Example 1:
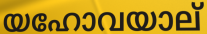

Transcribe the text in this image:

യഹോവയാല്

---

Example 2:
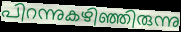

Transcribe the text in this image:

പിറന്നുകഴിഞ്ഞിരുന്നു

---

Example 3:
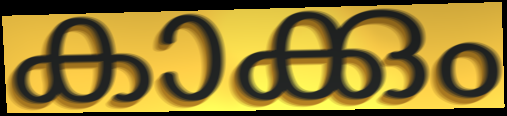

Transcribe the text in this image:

കാക്കും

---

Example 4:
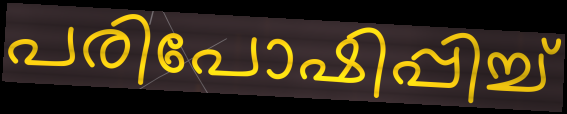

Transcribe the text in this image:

പരിപോഷിപ്പിച്ച്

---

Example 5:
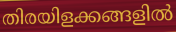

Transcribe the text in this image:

തിരയിളക്കങ്ങളിൽ